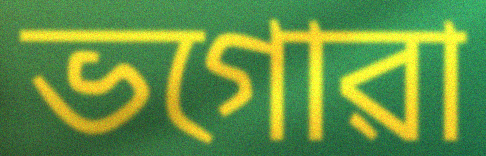
ভগোৱা